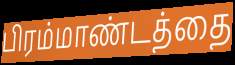
பிரம்மாண்டத்தை